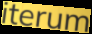
iterum